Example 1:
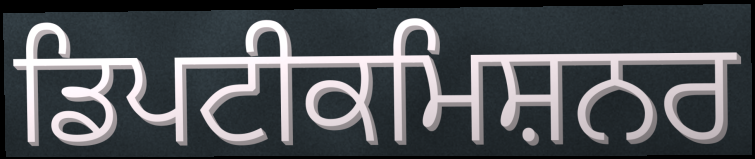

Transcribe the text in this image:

ਡਿਪਟੀਕਮਿਸ਼ਨਰ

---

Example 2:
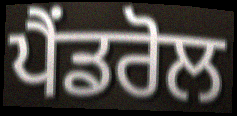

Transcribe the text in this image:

ਪੈਂਡਰੋਲ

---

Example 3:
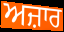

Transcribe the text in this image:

ਅਜ਼ਾਰ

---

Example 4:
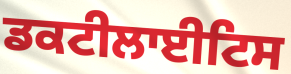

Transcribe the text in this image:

ਡਕਟੀਲਾਈਟਿਸ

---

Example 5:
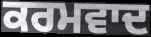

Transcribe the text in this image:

ਕਰਮਵਾਦ